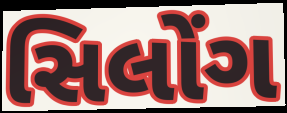
સિલોંગ